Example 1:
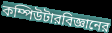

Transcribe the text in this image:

কম্পিউটারবিজ্ঞানের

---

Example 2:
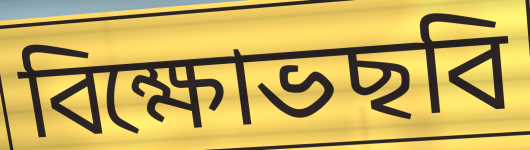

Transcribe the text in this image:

বিক্ষোভছবি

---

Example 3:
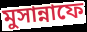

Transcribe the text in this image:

মুসান্নাফে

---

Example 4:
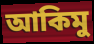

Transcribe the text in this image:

আকিমু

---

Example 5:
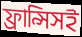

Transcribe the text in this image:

ফ্রান্সিসই